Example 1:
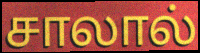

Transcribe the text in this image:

சாலால்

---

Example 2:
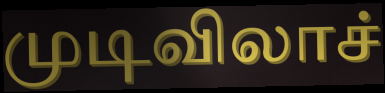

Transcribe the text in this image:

முடிவிலாச்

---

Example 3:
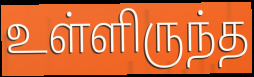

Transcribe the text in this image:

உள்ளிருந்த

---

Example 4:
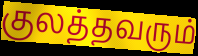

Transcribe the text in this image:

குலத்தவரும்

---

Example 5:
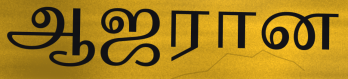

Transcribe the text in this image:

ஆஜரான